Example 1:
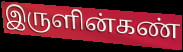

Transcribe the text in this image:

இருளின்கண்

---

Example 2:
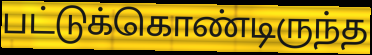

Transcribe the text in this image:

பட்டுக்கொண்டிருந்த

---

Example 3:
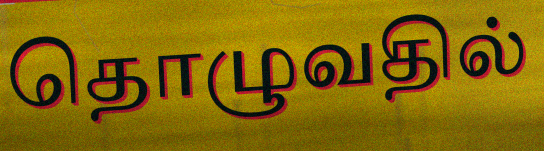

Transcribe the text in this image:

தொழுவதில்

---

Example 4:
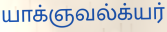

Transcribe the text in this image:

யாக்ஞவல்க்யர்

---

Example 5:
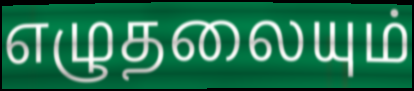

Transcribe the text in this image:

எழுதலையும்